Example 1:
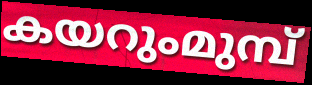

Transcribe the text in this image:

കയറുംമുമ്പ്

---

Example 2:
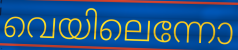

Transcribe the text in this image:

വെയിലെന്നോ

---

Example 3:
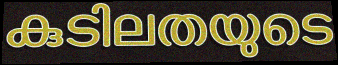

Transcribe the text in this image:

കുടിലതയുടെ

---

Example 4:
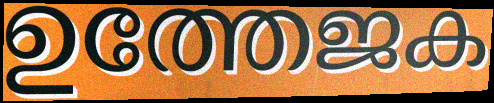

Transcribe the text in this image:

ഉത്തേജക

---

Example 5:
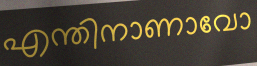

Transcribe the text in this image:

എന്തിനാണാവോ